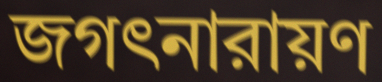
জগৎনারায়ণ